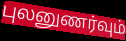
புலனுணர்வும்